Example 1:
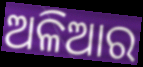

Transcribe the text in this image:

ଅଳିଆର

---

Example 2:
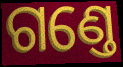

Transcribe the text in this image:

ଗଣ୍ତେ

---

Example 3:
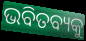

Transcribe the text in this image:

ଭବିତବ୍ୟକୁ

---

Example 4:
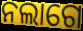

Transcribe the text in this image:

ନଲାଗେ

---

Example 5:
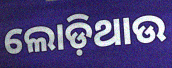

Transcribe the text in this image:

ଲୋଡ଼ିଥାଉ